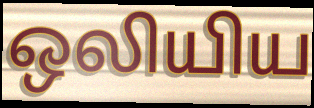
ஒலியிய